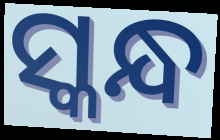
ସ୍କନ୍ଧ